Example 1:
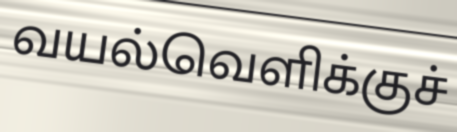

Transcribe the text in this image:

வயல்வெளிக்குச்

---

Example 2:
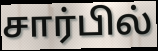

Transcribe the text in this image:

சார்பில்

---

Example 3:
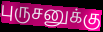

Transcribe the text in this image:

புருசனுக்கு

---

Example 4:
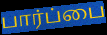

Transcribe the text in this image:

பார்ப்பை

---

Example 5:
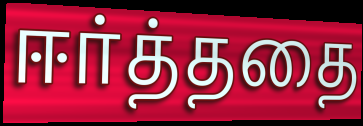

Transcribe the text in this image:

ஈர்த்ததை